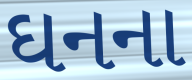
ઘનના